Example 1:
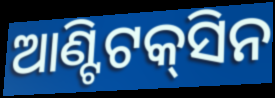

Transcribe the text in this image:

ଆଣ୍ଟିଟକ୍‌ସିନ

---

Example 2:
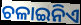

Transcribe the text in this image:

ଚଳାଇନିଏ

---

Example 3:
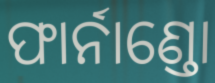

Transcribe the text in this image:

ଫାର୍ନାଣ୍ଡୋ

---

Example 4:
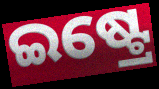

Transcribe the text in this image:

ଇଷ୍ଟ୍ରେ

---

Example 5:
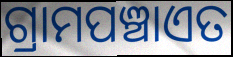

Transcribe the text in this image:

ଗ୍ରାମପଞ୍ଚାଏତ